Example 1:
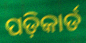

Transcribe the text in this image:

ପଡ଼ିକାର୍ଡ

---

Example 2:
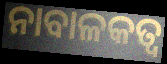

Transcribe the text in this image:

ନାବାଳକତ୍ଵ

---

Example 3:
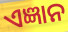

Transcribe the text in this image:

ଏଜ୍ଞାନ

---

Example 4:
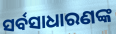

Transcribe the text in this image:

ସର୍ବସାଧାରଣଙ୍କ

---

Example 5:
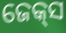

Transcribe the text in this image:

ଜେକ୍‍ସ